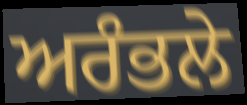
ਅਰੰਭਲੇ